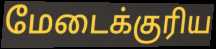
மேடைக்குரிய